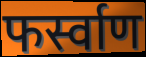
फर्स्वाण